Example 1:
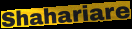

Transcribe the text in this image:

Shahariare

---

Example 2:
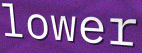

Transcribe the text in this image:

lower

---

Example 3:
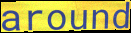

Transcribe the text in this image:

around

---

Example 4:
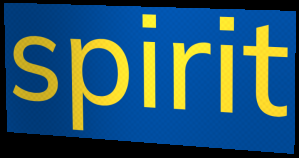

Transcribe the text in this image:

spirit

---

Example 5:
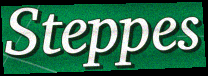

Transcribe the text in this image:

Steppes